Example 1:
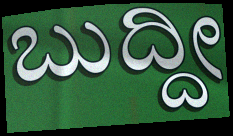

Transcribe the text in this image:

ಬುದ್ದೀ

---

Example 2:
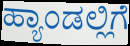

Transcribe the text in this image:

ಹ್ಯಾಂಡಲ್ಲಿಗೆ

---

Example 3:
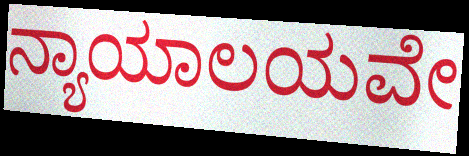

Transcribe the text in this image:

ನ್ಯಾಯಾಲಯವೇ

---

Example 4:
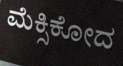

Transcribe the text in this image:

ಮೆಕ್ಸಿಕೋದ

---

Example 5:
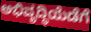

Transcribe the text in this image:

ಅಭಿವೃದ್ಧಿಯೆಡೆಗೆ